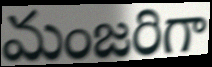
మంజరిగా